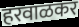
हरवाळकर